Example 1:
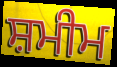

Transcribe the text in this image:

ਸ਼ਮੀਮ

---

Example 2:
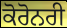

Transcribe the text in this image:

ਕੋਰੋਨਰੀ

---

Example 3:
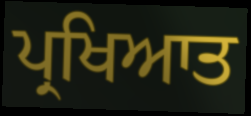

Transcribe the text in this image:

ਪ੍ਰਖਿਆਤ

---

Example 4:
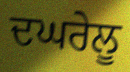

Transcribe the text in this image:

ਦਘਰੇਲੂ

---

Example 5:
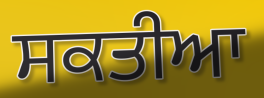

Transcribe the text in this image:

ਸਕਤੀਆ